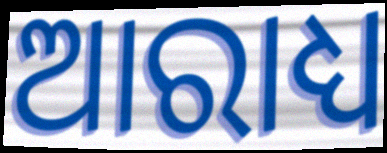
ଆରାଧ୍ୟ